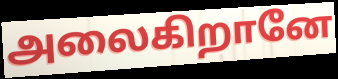
அலைகிறானே